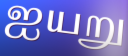
ஐயறு